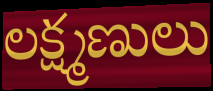
లక్ష్మణులు